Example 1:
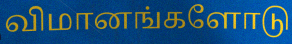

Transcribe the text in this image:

விமானங்களோடு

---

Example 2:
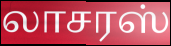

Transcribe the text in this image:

லாசரஸ்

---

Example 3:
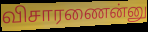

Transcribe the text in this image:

விசாரணைன்னு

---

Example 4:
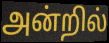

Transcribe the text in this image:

அன்றில்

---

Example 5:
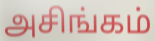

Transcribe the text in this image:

அசிங்கம்